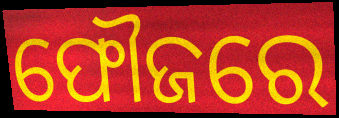
ଫୌଜରେ